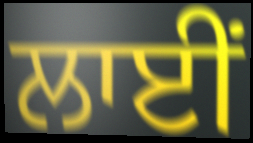
ਲਾਈਂ